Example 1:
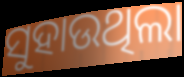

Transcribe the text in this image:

ସୁହାଉଥିଲା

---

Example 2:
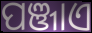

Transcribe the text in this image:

ପଞ୍ଜାଏ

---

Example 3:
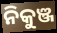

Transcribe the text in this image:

ନିକୁଞ୍ଜ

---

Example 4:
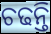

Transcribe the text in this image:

ଚଢନ୍ତି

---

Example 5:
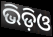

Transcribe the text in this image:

ଭିଡ଼ିଓ